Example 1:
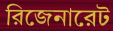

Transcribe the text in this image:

রিজেনারেট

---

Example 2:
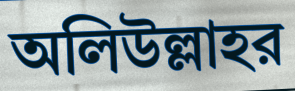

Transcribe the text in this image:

অলিউল্লাহর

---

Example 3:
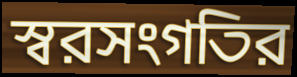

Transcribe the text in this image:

স্বরসংগতির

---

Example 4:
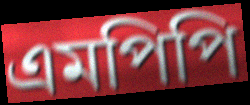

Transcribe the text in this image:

এমপিপি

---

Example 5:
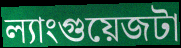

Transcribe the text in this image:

ল্যাংগুয়েজটা